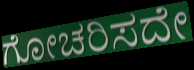
ಗೋಚರಿಸದೇ